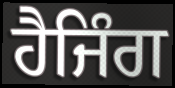
ਹੈਜਿੰਗ